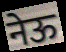
नेऊ